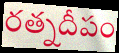
రత్నదీపం